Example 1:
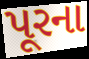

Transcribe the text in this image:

પૂરના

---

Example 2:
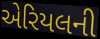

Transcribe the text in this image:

એરિયલની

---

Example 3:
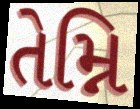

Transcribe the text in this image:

તેમ્નિ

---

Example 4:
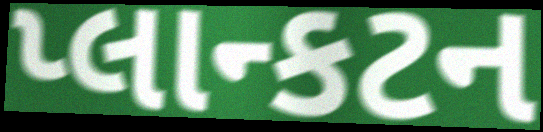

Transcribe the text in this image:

પ્લાન્કટન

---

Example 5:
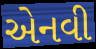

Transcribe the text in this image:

એનવી